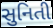
સુનિતી